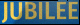
JUBILEE